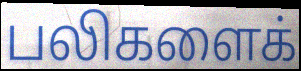
பலிகளைக்